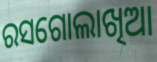
ରସଗୋଲାଖିଆ